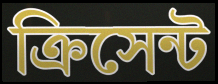
ক্রিসেন্ট